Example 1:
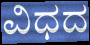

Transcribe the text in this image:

ವಿಧದ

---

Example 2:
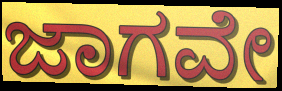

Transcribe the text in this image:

ಜಾಗವೇ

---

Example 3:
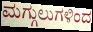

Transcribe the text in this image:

ಮಗ್ಗುಲುಗಳಿಂದ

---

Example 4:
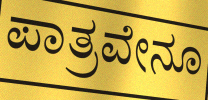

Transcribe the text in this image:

ಪಾತ್ರವೇನೂ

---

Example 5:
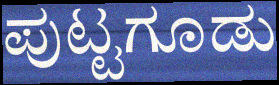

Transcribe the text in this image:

ಪುಟ್ಟಗೂಡು